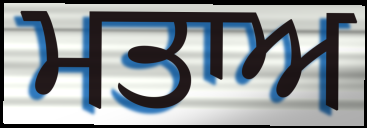
ਮਤਾਅ